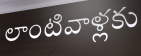
లాంటివాళ్లకు